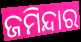
ଜମିନ୍ଦାର